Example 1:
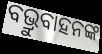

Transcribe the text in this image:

ବଭ୍ରୁବାହନଙ୍କ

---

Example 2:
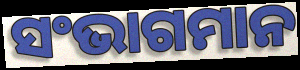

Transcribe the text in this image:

ସଂଭାଗମାନ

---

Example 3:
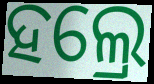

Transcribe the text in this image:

ହଲ୍ରେ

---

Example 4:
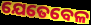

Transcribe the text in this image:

ଯେତେବେଳ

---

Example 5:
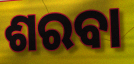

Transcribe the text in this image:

ଶରବା